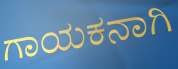
ಗಾಯಕನಾಗಿ